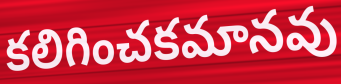
కలిగించకమానవు